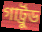
গার্ট্রুড